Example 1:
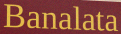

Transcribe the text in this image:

Banalata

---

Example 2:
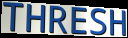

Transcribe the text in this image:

THRESH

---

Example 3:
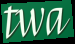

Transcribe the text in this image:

twa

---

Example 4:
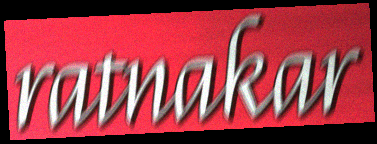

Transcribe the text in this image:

ratnakar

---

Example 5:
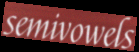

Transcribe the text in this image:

semivowels